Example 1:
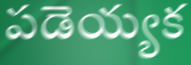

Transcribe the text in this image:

పడెయ్యక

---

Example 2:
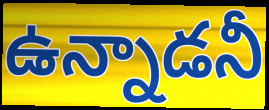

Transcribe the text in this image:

ఉన్నాడనీ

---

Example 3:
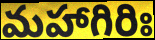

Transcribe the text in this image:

మహాగిరిః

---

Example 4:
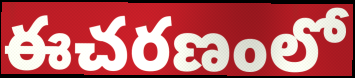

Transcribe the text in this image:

ఈచరణంలో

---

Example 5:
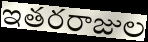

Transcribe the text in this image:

ఇతరరాజుల